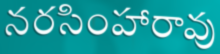
నరసింహారావు